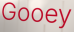
Gooey